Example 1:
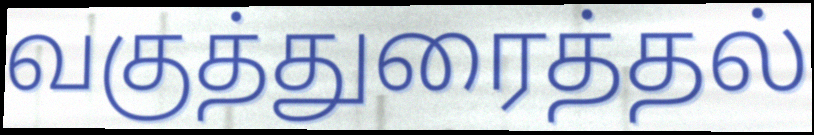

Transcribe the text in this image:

வகுத்துரைத்தல்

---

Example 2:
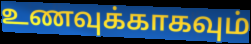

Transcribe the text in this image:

உணவுக்காகவும்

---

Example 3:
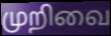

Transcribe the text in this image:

முறிவை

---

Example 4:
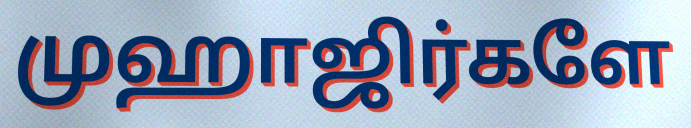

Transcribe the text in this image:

முஹாஜிர்களே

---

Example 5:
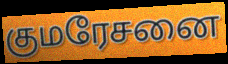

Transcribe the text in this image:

குமரேசனை